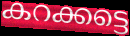
കറക്കട്ടെ